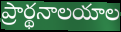
ప్రార్థనాలయాల